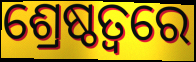
ଶ୍ରେଷ୍ଠତ୍ୱରେ